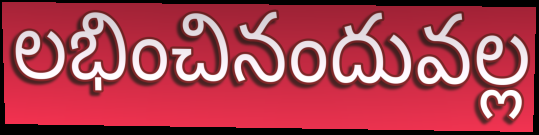
లభించినందువల్ల